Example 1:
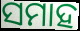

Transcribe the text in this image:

ସମାହ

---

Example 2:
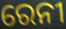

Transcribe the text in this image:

ରେନୀ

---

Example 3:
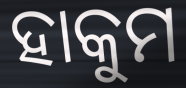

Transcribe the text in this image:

ହାକୁମ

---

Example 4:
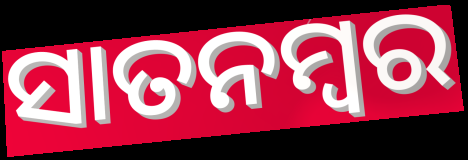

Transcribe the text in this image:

ସାତନମ୍ବର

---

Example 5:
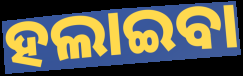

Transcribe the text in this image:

ହଲାଇବା